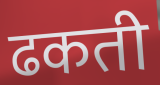
ढकती